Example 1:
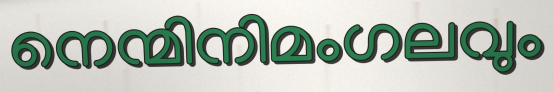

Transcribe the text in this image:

നെന്മിനിമംഗലവും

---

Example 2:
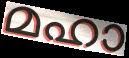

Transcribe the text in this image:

മഹാ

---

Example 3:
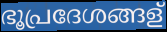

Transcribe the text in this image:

ഭൂപ്രദേശങ്ങള്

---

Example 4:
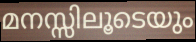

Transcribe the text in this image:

മനസ്സിലൂടെയും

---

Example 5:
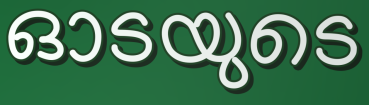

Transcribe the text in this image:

ഓടയുടെ